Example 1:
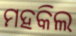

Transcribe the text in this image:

ମହକିଲ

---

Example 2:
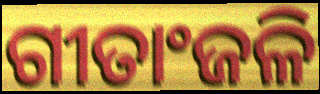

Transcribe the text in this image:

ଗୀତାଂଜଳି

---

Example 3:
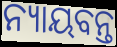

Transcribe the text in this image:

ନ୍ୟାୟବନ୍ତ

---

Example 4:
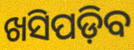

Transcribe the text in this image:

ଖସିପଡ଼ିବ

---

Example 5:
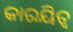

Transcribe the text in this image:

କାରୟିତ୍ୱ